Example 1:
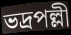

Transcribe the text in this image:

ভদ্রপল্লী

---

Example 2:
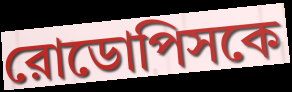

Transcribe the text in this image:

রোডোপিসকে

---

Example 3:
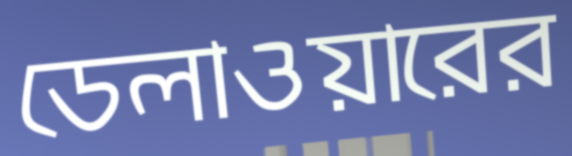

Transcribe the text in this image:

ডেলাওয়ারের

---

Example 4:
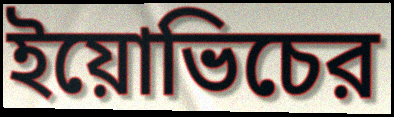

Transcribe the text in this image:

ইয়োভিচের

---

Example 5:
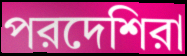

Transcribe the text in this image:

পরদেশিরা